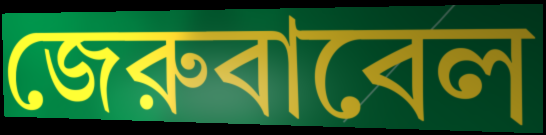
জেরুবাবেল